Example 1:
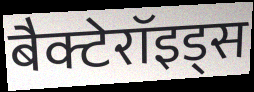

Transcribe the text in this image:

बैक्टेरॉइड्स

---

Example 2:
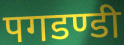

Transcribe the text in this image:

पगडण्डी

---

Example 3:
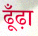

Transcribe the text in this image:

ढूँढ़ा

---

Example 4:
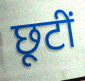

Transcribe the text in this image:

छूटीं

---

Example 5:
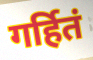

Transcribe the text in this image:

गर्हितं